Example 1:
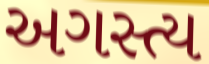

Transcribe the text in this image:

અગસ્ત્ય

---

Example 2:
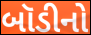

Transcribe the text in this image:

બૉડીનો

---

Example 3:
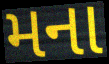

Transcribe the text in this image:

મના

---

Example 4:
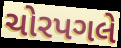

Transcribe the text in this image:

ચોરપગલે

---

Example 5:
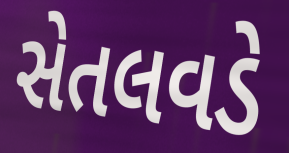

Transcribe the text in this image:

સેતલવડે